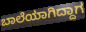
ಬಾಲೆಯಾಗಿದ್ದಾಗ